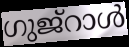
ഗുജ്റാൾ